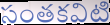
సంతకవిటి